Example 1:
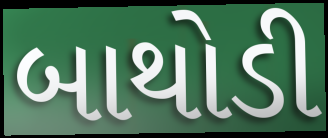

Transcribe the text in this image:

બાથોડી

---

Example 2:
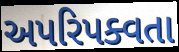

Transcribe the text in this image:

અપરિપક્વતા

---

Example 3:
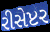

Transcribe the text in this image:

રીસેપ્ટર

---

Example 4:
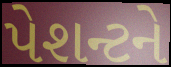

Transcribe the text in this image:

પેશન્ટને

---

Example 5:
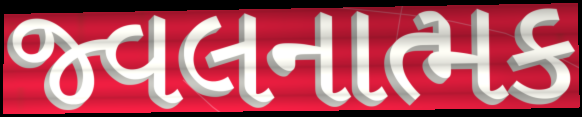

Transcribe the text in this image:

જ્વલનાત્મક